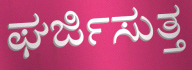
ಘರ್ಜಿಸುತ್ತ